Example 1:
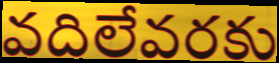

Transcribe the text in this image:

వదిలేవరకు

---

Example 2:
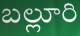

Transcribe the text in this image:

బల్లూరి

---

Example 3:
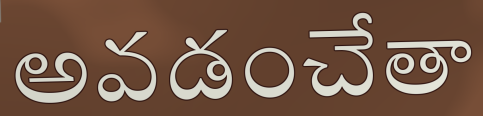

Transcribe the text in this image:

అవడంచేతా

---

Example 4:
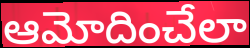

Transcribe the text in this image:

ఆమోదించేలా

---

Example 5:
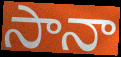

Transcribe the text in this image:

సానా